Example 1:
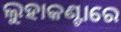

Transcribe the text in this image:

ଲୁହାକଣ୍ଟାରେ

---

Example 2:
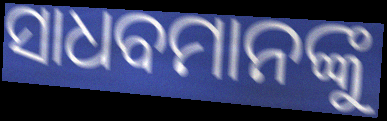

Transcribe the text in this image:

ସାଧବମାନଙ୍କୁ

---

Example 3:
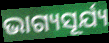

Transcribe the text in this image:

ଭାଗ୍ୟସୂର୍ଯ୍ୟ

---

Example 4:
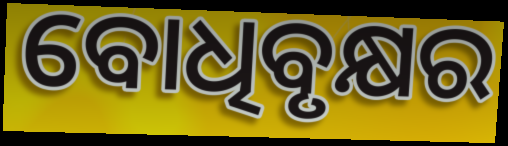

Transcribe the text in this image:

ବୋଧିବୃକ୍ଷର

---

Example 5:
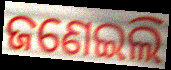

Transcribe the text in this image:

ଜଣେଇଲି